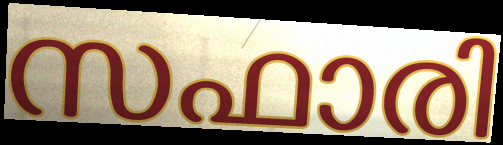
സഫാരി